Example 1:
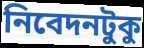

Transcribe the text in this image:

নিবেদনটুকু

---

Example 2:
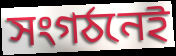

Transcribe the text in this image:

সংগঠনেই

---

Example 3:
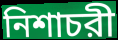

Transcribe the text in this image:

নিশাচরী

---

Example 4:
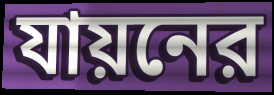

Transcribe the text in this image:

যায়নের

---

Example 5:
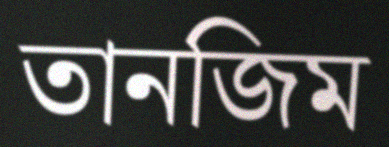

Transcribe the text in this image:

তানজিম